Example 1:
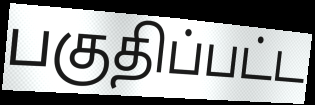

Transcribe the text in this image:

பகுதிப்பட்ட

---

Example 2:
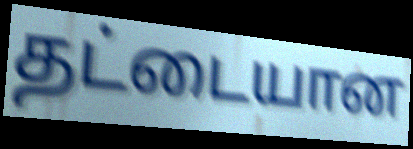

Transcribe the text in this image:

தட்டையான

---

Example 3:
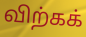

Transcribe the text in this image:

விற்கக்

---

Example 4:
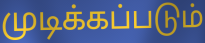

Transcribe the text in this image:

முடிக்கப்படும்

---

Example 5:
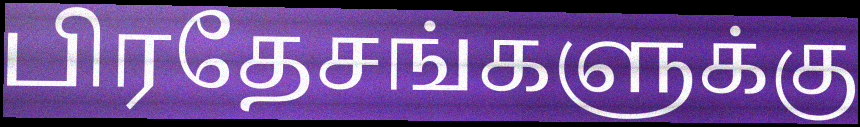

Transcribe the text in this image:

பிரதேசங்களுக்கு